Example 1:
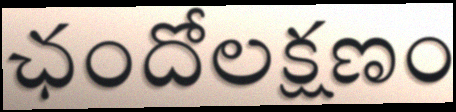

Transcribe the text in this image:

ఛందోలక్షణం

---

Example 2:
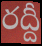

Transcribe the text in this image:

రద్దీ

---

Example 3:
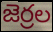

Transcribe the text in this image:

జెర్రల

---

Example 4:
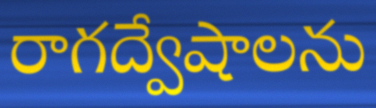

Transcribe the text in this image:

రాగద్వేషాలను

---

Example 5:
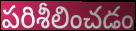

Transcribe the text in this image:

పరిశీలించడం